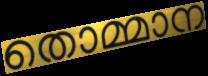
തൊമ്മാന